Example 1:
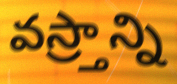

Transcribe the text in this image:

వస్ర్తాన్ని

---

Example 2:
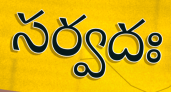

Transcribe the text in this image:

సర్వదః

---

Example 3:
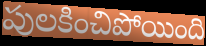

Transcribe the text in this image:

పులకించిపోయింది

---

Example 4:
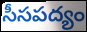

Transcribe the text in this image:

సీసపద్యం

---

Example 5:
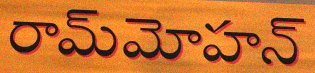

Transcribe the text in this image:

రామ్‌మోహన్